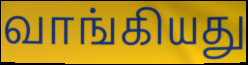
வாங்கியது